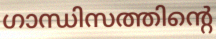
ഗാന്ധിസത്തിന്റെ